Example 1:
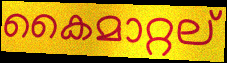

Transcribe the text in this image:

കൈമാറ്റല്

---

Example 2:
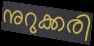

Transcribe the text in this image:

നുറുക്കരി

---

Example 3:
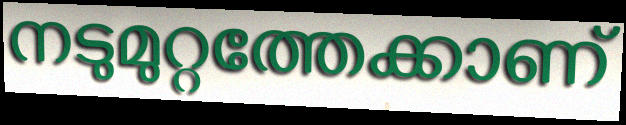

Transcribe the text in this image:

നടുമുറ്റത്തേക്കാണ്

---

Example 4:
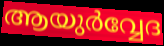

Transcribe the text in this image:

ആയുർവ്വേദ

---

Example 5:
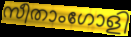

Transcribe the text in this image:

സീതാംഗോളി